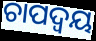
ଚାପଦ୍ଵୟ